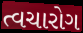
ત્વચારોગ